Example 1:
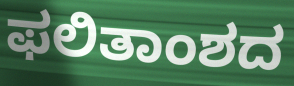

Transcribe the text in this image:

ಫಲಿತಾಂಶದ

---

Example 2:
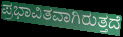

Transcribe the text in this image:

ಪ್ರಭಾವಿತವಾಗಿರುತ್ತದೆ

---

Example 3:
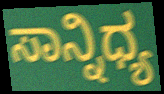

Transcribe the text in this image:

ಸಾನ್ನಿಧ್ಯ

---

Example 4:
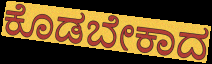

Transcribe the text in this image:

ಕೊಡಬೇಕಾದ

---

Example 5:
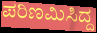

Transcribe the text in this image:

ಪರಿಣಮಿಸಿದ್ದ